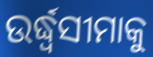
ଉର୍ଦ୍ଧ୍ୱସୀମାକୁ